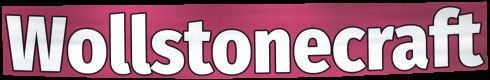
Wollstonecraft